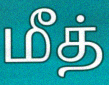
மீத்